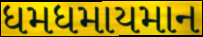
ધમધમાયમાન